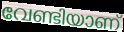
വേണ്ടിയാണ്